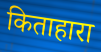
किताहारा